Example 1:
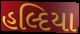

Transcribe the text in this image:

હલ્દિયા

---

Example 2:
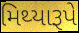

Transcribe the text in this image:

મિથ્યારૂપે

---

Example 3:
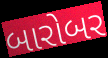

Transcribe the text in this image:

બારોબર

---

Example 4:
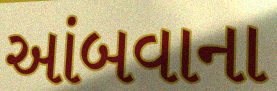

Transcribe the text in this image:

આંબવાના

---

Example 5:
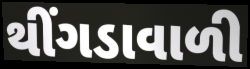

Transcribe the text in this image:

થીંગડાવાળી